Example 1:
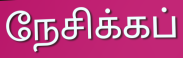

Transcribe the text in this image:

நேசிக்கப்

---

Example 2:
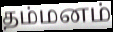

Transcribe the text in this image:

தம்மனம்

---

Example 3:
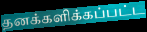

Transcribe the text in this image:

தனக்களிக்கப்பட்ட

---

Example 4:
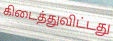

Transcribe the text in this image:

கிடைத்துவிட்டது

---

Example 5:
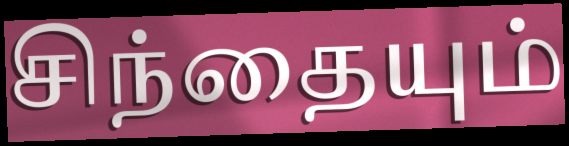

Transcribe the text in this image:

சிந்தையும்